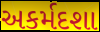
અકર્મદશા